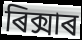
ৰিক্সাৰ